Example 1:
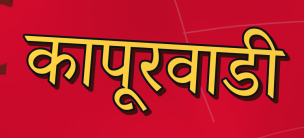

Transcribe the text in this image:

कापूरवाडी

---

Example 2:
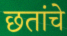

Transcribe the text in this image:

छतांचे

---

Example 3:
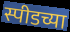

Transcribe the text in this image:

स्पीडच्या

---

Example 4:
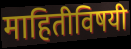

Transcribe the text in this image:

माहितीविषयी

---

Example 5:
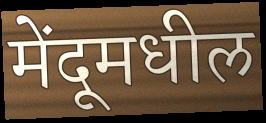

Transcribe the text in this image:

मेंदूमधील